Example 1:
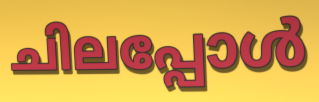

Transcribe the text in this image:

ചിലപ്പോൾ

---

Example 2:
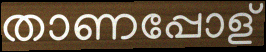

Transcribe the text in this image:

താണപ്പോള്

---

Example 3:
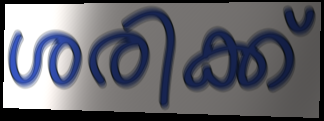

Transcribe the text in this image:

ശരിക്ക്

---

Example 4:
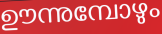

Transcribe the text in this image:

ഊന്നുമ്പോഴും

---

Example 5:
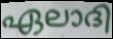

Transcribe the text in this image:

ഏലാദി